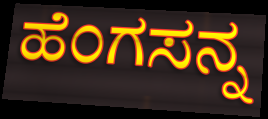
ಹೆಂಗಸನ್ನ